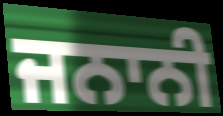
ਜਨਾਨੀ